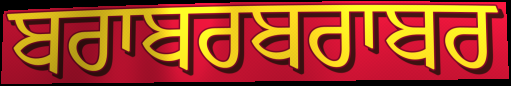
ਬਰਾਬਰਬਰਾਬਰ